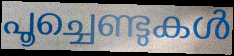
പൂച്ചെണ്ടുകൾ